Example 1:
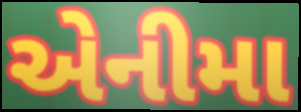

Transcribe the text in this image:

એનીમા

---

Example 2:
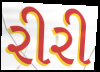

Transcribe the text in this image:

રીરી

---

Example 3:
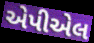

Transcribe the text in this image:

એપીએલ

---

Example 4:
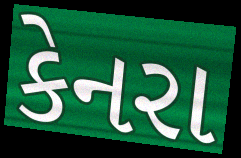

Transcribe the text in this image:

કેનરા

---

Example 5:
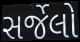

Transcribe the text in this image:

સર્જેલો